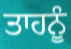
ਤਾਹਨੂੰ